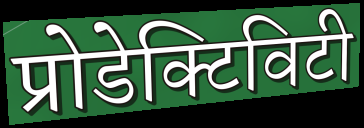
प्रोडेक्टिविटी